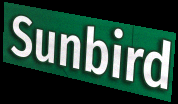
Sunbird